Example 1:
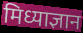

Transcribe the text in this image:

मिध्याज्ञान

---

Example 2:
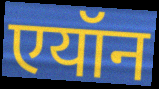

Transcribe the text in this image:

एयॉन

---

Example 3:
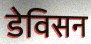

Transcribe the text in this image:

डेविसन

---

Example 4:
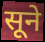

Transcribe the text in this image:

सूने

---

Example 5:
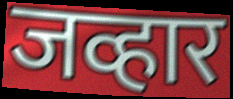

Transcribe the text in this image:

जव्हार